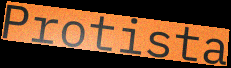
Protista